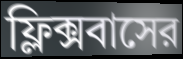
ফ্লিক্সবাসের